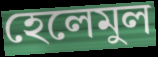
হেলেমুল